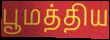
பூமத்திய